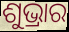
ଶୁଭ୍ରାର